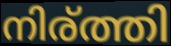
നിര്ത്തി